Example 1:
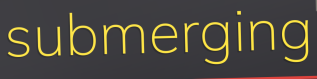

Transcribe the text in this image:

submerging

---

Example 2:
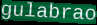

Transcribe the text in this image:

gulabrao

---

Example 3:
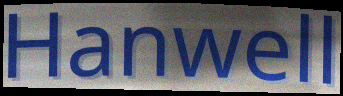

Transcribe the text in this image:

Hanwell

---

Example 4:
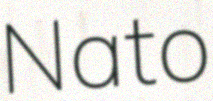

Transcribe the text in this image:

Nato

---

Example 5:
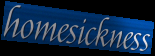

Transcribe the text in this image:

homesickness